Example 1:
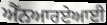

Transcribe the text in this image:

ਐੱਨਆਰਏਆਈ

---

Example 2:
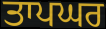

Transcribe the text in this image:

ਤਾਪਘਰ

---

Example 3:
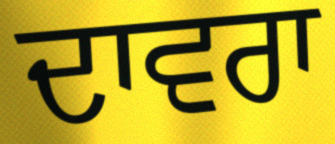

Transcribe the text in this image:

ਦਾਵਰਾ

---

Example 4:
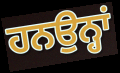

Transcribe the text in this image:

ਹਨਉਨ੍ਹਾਂ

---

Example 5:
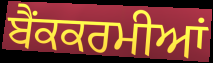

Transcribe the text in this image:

ਬੈਂਕਕਰਮੀਆਂ